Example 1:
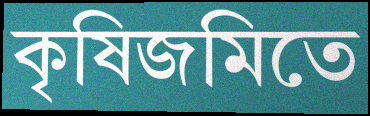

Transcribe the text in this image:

কৃষিজমিতে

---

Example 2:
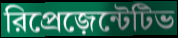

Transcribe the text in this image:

রিপ্রেজ়েন্টেটিভ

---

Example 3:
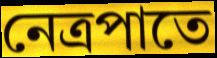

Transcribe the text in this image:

নেত্রপাতে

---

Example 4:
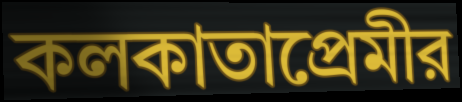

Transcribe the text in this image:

কলকাতাপ্রেমীর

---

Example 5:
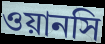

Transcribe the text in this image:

ওয়ানসি